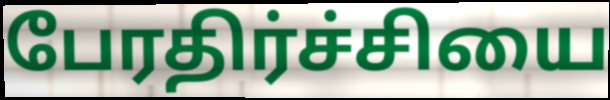
பேரதிர்ச்சியை